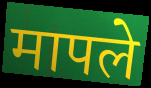
मापले